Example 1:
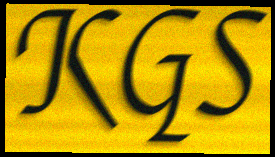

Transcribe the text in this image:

KGS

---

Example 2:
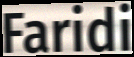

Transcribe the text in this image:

Faridi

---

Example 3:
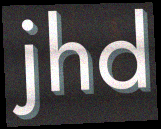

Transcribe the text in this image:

jhd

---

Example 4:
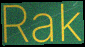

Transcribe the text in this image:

Rak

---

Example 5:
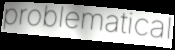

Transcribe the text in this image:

problematical